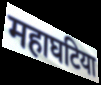
महाघटिया